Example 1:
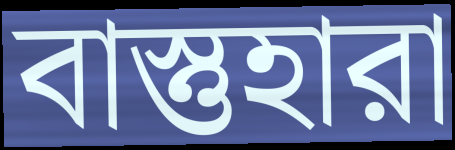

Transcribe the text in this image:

বাস্তুহারা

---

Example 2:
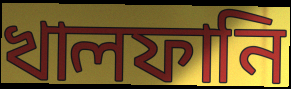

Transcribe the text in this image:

খালফানি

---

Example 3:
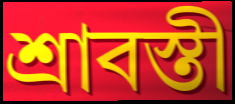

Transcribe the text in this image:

শ্রাবস্তী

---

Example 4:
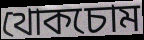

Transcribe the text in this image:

থোকচোম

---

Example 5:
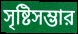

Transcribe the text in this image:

সৃষ্টিসম্ভার